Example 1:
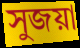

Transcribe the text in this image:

সুজয়া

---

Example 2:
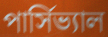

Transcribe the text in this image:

পার্সিভ্যাল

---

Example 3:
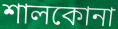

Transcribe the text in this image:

শালকোনা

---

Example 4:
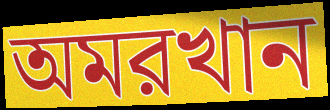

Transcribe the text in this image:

অমরখান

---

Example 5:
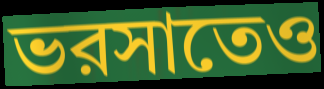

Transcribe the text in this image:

ভরসাতেও